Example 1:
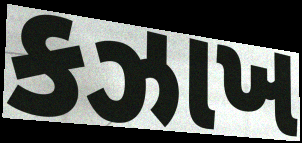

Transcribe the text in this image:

કઝાખ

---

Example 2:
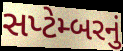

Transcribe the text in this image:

સપ્ટેમ્બરનું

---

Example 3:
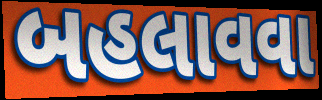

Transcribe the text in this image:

બહલાવવા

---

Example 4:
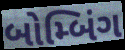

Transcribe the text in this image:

બોમ્બિંગ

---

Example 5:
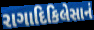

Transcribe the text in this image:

રાગાદિકિલેસાનં